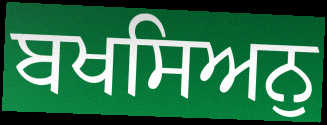
ਬਖਸਿਅਨੁ